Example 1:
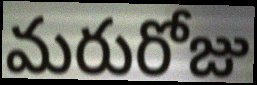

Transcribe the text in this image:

మరురోజు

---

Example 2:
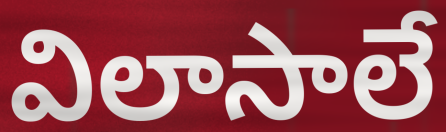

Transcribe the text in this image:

విలాసాలే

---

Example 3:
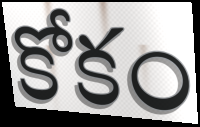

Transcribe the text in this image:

కోకం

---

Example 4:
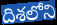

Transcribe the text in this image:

దిశలోని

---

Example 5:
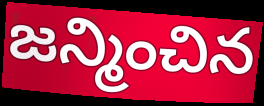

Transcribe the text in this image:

జన్మించిన